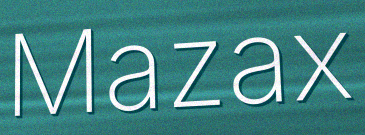
Mazax